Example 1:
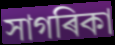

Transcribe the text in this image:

সাগৰিকা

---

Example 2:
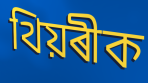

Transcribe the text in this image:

থিয়ৰীক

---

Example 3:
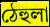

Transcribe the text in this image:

ঠেহুলা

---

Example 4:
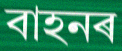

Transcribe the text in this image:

বাহনৰ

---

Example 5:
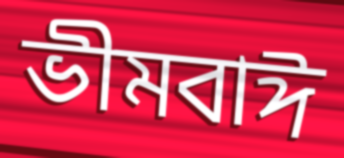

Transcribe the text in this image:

ভীমবাঈ